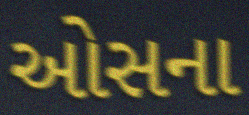
ઓસના